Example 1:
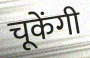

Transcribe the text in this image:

चूकेंगी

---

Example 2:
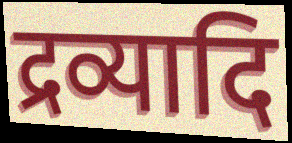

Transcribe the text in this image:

द्रव्यादि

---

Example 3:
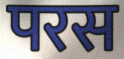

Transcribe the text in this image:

परस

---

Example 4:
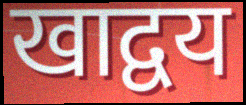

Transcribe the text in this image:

खाद्वय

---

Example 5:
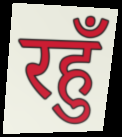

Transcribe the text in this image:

रहुँ